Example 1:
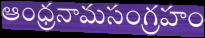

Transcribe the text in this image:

ఆంధ్రనామసంగ్రహం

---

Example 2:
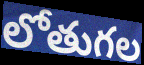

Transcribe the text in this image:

లోతుగల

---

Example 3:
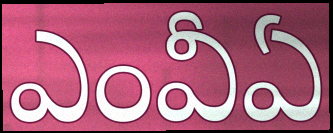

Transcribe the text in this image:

ఎంవీఏ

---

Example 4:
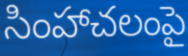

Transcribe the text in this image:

సింహాచలంపై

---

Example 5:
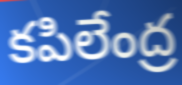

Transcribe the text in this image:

కపిలేంద్ర